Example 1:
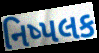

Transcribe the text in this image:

નિષ્પલક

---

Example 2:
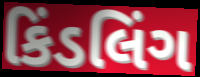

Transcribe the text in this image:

કિંડલિંગ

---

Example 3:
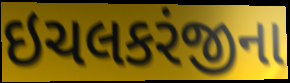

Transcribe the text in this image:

ઇચલકરંજીના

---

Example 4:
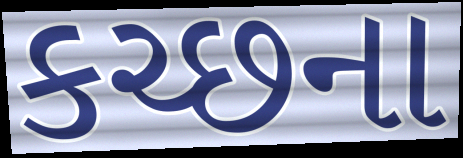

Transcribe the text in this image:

કચ્છના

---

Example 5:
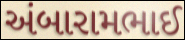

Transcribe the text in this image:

અંબારામભાઈ